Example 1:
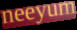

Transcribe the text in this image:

neeyum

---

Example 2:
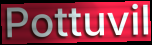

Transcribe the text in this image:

Pottuvil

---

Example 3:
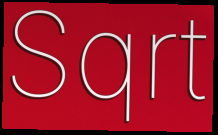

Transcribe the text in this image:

Sqrt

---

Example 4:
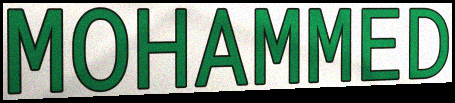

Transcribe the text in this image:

MOHAMMED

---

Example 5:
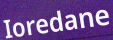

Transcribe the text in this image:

Ioredane